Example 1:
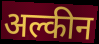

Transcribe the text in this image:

अल्कीन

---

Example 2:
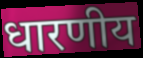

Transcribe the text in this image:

धारणीय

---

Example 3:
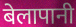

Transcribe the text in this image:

बेलापानी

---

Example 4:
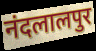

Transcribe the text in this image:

नंदलालपुर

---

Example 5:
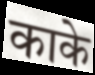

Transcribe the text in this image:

काके